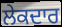
ਲੇਕਦਾਰ